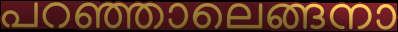
പറഞ്ഞാലെങ്ങനാ